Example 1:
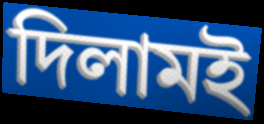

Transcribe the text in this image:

দিলামই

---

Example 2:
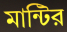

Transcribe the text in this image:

মান্টির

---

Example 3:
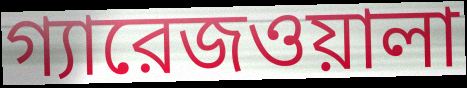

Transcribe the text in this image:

গ্যারেজওয়ালা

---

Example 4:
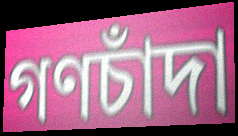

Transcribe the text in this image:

গণচাঁদা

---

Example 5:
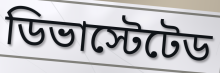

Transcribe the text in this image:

ডিভাস্টেটেড